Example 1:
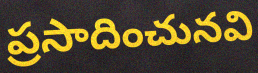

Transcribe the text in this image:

ప్రసాదించునవి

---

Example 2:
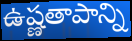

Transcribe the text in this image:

ఉష్ణతాపాన్ని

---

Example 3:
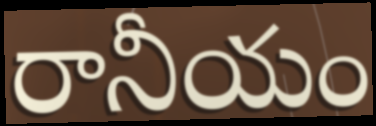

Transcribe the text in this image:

రానీయం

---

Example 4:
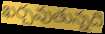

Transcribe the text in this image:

ఖర్చవుతున్నది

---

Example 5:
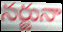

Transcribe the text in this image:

నర్జునా